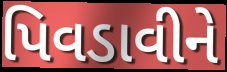
પિવડાવીને